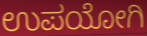
ಉಪಯೋಗಿ